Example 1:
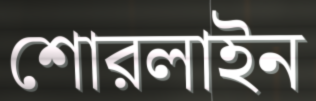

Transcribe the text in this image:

শোরলাইন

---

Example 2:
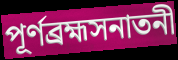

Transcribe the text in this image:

পূর্ণব্রহ্মসনাতনী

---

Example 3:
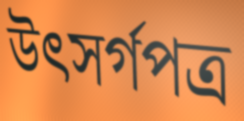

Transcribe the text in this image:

উৎসর্গপত্র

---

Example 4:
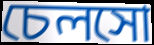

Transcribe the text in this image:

চেলসো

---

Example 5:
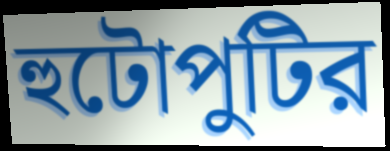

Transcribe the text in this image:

হুটোপুটির